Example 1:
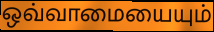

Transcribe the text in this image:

ஒவ்வாமையையும்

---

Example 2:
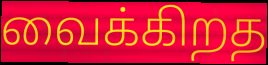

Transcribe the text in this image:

வைக்கிறத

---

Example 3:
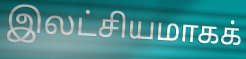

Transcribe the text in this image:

இலட்சியமாகக்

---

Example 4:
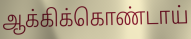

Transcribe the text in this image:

ஆக்கிக்கொண்டாய்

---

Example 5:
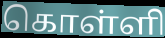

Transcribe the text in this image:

கொள்ளி